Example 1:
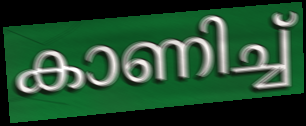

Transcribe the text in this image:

കാണിച്ച്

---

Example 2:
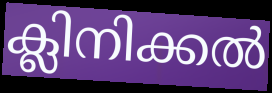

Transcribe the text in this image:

ക്ലിനിക്കൽ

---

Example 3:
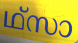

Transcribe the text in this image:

ഥ്സാ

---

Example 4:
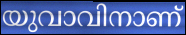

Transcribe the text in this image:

യുവാവിനാണ്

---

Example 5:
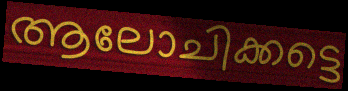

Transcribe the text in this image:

ആലോചിക്കട്ടെ